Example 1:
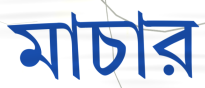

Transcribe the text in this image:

মাচার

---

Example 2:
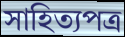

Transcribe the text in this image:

সাহিত্যপত্র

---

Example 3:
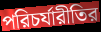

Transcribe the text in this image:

পরিচর্যারীতির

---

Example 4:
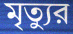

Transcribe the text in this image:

মৃত্যুর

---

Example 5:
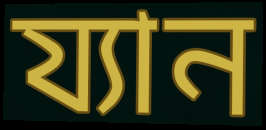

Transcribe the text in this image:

য্যান